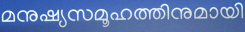
മനുഷ്യസമൂഹത്തിനുമായി